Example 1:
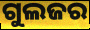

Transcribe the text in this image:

ଗୁଲଜର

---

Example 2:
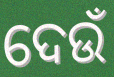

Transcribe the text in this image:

ଦେଉଁ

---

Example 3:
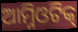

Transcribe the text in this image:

ଆମ୍ନିଓଟିକ୍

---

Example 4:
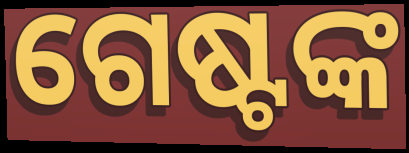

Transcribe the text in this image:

ଗେଷ୍ଟଙ୍କ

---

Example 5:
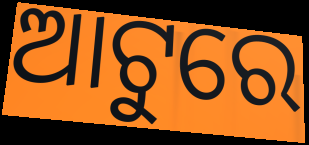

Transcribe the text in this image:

ଆଟୁରେ